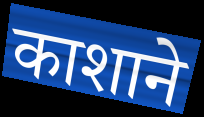
काशाने